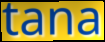
tana